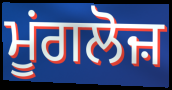
ਮੂਂਗਲੋਜ਼